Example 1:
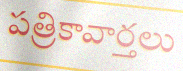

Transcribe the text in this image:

పత్రికావార్తలు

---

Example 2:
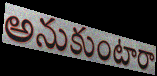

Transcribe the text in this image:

అనుకుంటారా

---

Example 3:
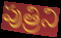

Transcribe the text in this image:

పుత్రిని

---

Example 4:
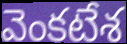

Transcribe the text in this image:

వెంకటేశ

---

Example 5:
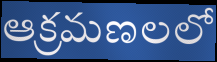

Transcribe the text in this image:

ఆక్రమణలలో